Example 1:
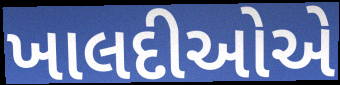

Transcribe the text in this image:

ખાલદીઓએ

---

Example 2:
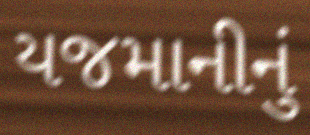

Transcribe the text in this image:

યજમાનીનું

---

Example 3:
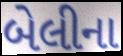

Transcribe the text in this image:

બેલીના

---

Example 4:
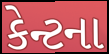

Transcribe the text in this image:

કેન્ટના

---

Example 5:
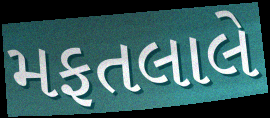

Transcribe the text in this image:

મફતલાલે